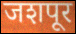
जशपूर